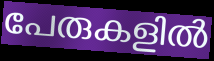
പേരുകളിൽ